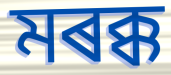
মৰক্ক